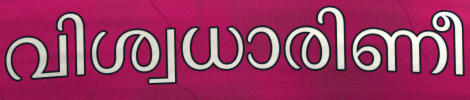
വിശ്വധാരിണീ